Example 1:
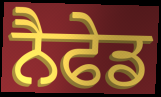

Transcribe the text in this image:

ਨੈਫੇਡ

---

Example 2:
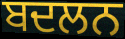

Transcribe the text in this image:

ਬਦਲਨ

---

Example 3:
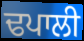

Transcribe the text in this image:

ਢਪਾਲੀ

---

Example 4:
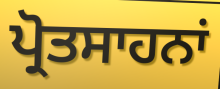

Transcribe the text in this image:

ਪ੍ਰੋਤਸਾਹਨਾਂ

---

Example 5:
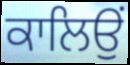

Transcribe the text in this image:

ਕਾਲਿਉਂ